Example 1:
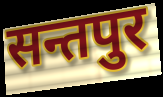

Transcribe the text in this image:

सन्तपुर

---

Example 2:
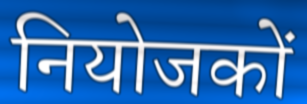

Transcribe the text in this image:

नियोजकों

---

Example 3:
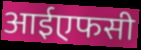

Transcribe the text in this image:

आईएफसी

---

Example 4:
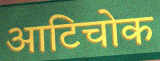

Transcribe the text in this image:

आटिचोक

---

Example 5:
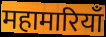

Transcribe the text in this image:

महामारियाँ